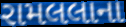
રામલલાના